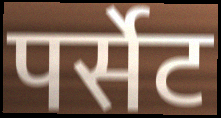
पर्सेट